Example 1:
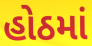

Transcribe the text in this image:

હોઠમાં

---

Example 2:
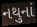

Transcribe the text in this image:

નથુનાં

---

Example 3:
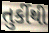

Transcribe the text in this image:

તુર્કીથી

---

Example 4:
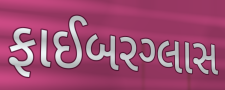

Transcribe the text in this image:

ફાઈબરગ્લાસ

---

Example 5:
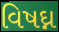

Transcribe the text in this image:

વિષઘ્ન